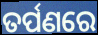
ତର୍ପଣରେ